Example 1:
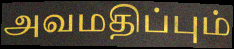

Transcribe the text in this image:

அவமதிப்பும்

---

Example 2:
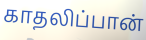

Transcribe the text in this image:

காதலிப்பான்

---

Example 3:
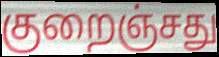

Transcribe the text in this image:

குறைஞ்சது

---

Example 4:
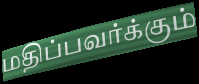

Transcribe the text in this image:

மதிப்பவர்க்கும்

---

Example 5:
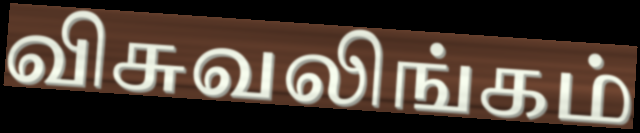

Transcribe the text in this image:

விசுவலிங்கம்